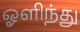
ஓளிந்து